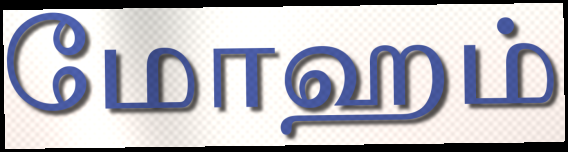
மோஹம்